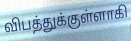
விபத்துக்குள்ளாகி